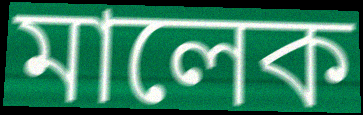
মালেক